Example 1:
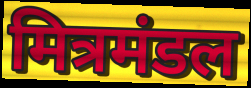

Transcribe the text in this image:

मित्रमंडल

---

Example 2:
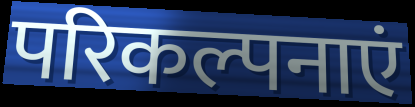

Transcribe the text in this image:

परिकल्पनाएं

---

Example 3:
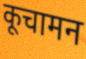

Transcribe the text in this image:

कूचामन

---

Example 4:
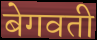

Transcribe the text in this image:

बेगवती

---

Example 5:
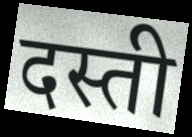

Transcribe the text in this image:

दस्ती